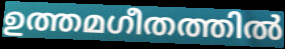
ഉത്തമഗീതത്തിൽ